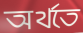
অৰ্থতে